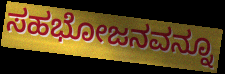
ಸಹಭೋಜನವನ್ನೂ